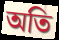
অতি